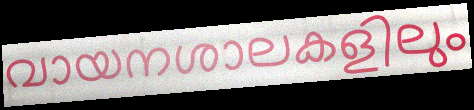
വായനശാലകളിലും